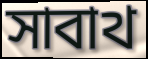
সাবাথ